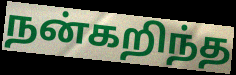
நன்கறிந்த